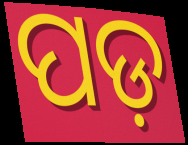
ପଡ଼